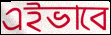
এইভাবে